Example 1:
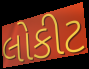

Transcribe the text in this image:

લોકીટ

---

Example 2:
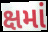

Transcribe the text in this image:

ક્ષમાં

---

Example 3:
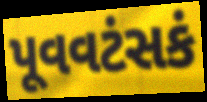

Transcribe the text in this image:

પૂવવટંસકં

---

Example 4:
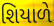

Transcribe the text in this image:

શિયાળે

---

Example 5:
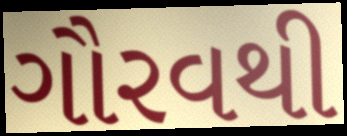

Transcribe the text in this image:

ગૌરવથી